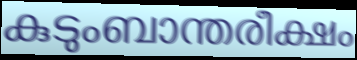
കുടുംബാന്തരീക്ഷം